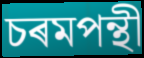
চৰমপন্থী